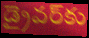
డ్రైవర్‌కు